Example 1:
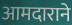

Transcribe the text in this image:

आमदाराने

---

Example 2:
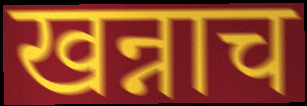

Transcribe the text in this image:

खन्नाच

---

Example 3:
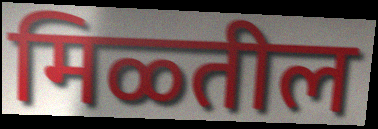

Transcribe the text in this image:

मिळ्तील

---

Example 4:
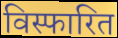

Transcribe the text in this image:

विस्फारित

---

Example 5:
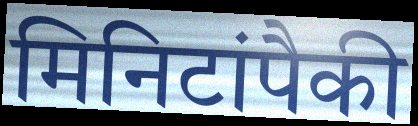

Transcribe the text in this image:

मिनिटांपैकी